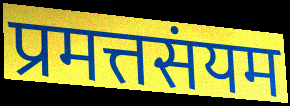
प्रमत्तसंयम